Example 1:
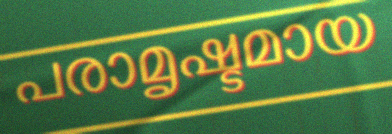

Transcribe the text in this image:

പരാമൃഷ്ടമായ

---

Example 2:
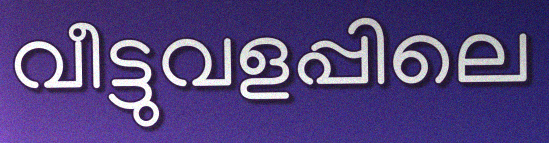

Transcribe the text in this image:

വീട്ടുവളപ്പിലെ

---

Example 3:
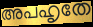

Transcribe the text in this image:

അപഹൃതേ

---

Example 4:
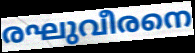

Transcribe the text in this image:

രഘുവീരനെ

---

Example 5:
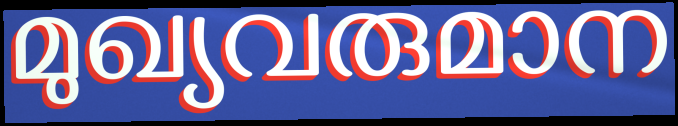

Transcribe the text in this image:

മുഖ്യവരുമാന